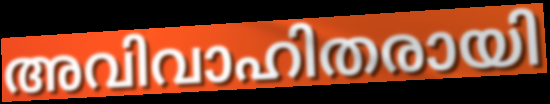
അവിവാഹിതരായി